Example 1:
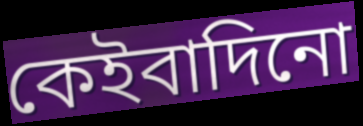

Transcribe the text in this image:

কেইবাদিনো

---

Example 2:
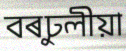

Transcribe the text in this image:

বৰঢুলীয়া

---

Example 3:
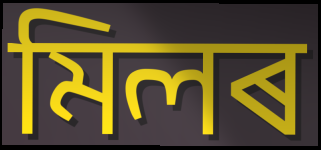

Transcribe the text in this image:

মিলৰ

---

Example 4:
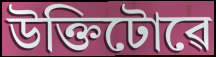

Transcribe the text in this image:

উক্তিটোৱে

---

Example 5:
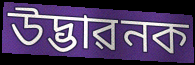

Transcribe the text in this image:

উদ্ভাৱনক